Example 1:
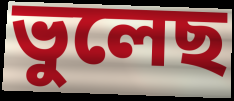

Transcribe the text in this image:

ভুলেছ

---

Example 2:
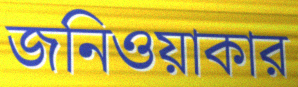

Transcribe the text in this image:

জনিওয়াকার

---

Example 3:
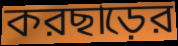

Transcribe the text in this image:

করছাড়ের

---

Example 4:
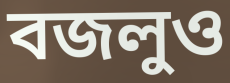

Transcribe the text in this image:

বজলুও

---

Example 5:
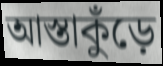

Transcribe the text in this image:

আস্তাকুঁড়ে